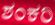
ಶಂಕರಿ